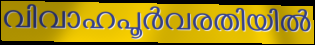
വിവാഹപൂർവരതിയിൽ